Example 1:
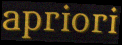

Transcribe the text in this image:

apriori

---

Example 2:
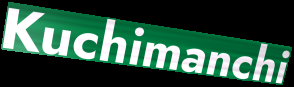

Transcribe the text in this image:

Kuchimanchi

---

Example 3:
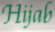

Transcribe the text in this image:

Hijab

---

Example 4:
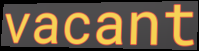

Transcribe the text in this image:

vacant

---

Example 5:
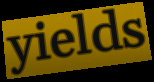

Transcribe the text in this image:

yields